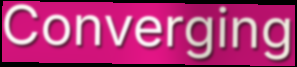
Converging